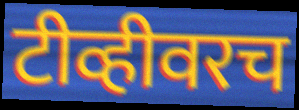
टीव्हीवरच